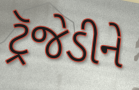
ટ્રૅજેડીને